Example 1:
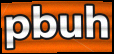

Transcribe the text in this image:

pbuh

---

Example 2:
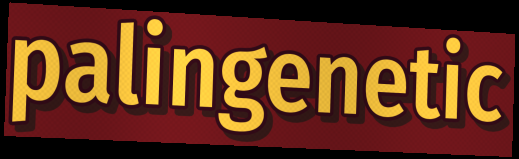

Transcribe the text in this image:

palingenetic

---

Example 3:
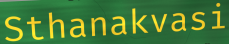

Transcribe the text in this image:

Sthanakvasi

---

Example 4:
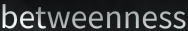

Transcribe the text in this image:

betweenness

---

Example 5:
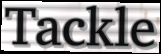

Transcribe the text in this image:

Tackle